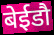
बेईडौ